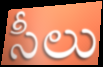
సీలు